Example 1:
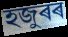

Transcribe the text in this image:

হজুৰৰ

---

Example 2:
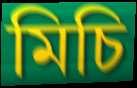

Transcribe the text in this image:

মিচি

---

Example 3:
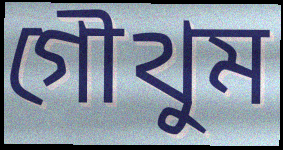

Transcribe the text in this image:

গৌথুম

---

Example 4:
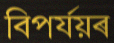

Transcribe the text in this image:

বিপৰ্যয়ৰ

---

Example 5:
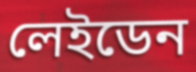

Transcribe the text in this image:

লেইডেন